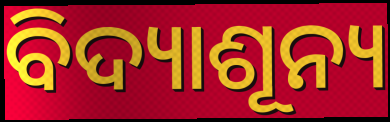
ବିଦ୍ୟାଶୂନ୍ୟ